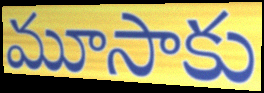
మూసాకు